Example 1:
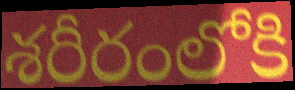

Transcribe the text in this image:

శరీరంలోకి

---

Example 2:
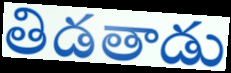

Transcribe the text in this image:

తిడతాడు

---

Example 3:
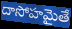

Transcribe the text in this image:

దాసోహమైతే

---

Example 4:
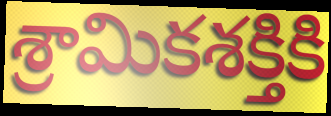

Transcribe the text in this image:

శ్రామికశక్తికి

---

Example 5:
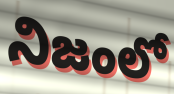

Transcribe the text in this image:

నిజంలో